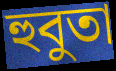
হুবুতা